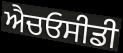
ਐਚਓਸੀਡੀ